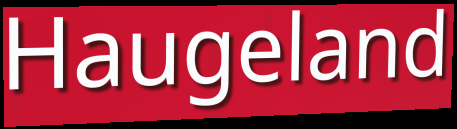
Haugeland